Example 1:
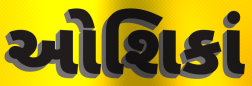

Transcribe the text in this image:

ઓશિકાં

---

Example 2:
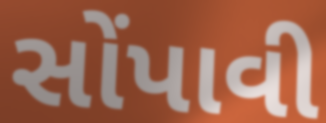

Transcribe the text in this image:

સોંપાવી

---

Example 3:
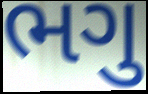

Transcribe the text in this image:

ભગુ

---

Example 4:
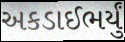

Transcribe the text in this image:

અકડાઈભર્યું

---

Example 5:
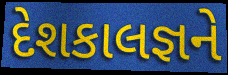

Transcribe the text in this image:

દેશકાલજ્ઞને